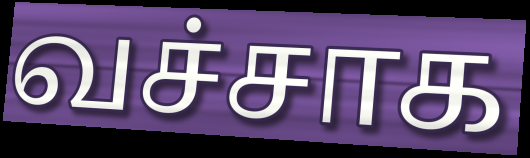
வச்சாக